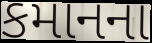
કમાનના